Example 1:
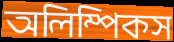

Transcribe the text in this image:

অলিম্পিকস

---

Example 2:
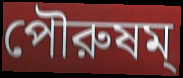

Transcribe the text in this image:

পৌরুষম্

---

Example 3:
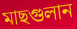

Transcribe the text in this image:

মাছগুলান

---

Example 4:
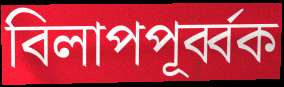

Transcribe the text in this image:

বিলাপপূর্ব্বক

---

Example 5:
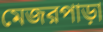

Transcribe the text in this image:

মেজরপাড়া